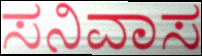
ಸನಿವಾಸ